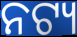
ନଟ୍ୟ